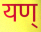
यण्